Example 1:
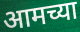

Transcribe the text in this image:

आमच्या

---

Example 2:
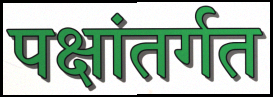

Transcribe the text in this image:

पक्षांतर्गत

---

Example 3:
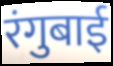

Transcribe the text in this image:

रंगुबाई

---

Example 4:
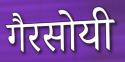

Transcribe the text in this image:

गैरसोयी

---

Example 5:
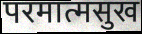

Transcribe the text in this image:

परमात्मसुख